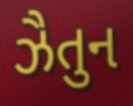
ઝૈતુન